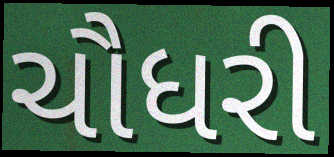
ચૌધરી